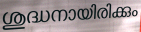
ശുദ്ധനായിരിക്കും